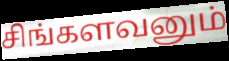
சிங்களவனும்